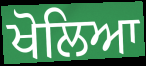
ਖੋਲਿਆ